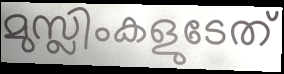
മുസ്ലിംകളുടേത്